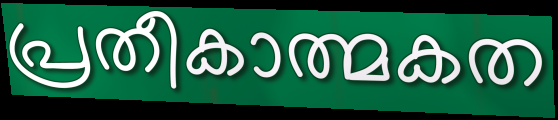
പ്രതീകാത്മകത